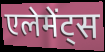
एलेमेंट्स